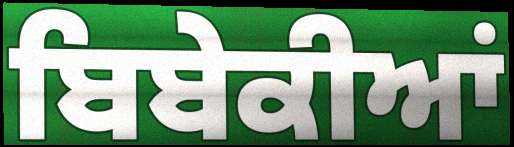
ਬਿਬੇਕੀਆਂ